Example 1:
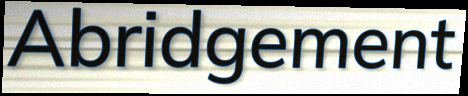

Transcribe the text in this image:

Abridgement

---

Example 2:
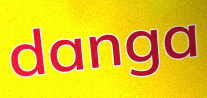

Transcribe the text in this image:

danga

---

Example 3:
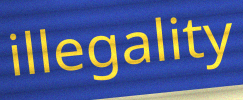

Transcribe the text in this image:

illegality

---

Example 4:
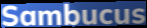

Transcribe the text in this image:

Sambucus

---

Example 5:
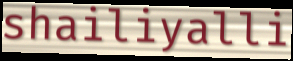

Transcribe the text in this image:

shailiyalli